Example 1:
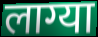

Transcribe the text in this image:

लाग्या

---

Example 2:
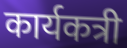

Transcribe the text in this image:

कार्यकत्री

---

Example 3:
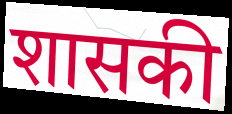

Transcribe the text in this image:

शासकी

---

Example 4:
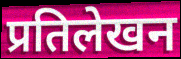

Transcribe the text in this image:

प्रतिलेखन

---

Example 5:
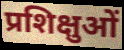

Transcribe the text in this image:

प्रशिक्षुओं